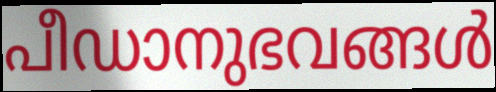
പീഡാനുഭവങ്ങൾ